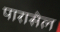
पारासेल